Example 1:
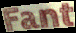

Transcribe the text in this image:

Fant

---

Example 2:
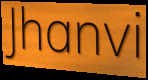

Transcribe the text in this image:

Jhanvi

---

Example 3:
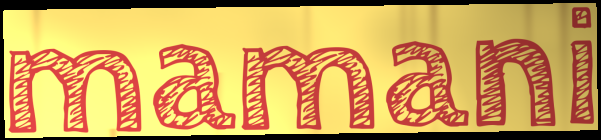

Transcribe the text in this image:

mamani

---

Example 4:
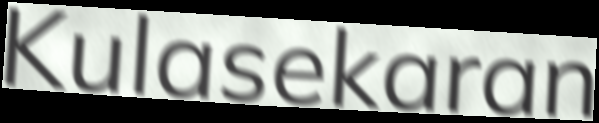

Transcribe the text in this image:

Kulasekaran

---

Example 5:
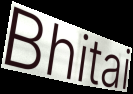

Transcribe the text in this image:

Bhitai